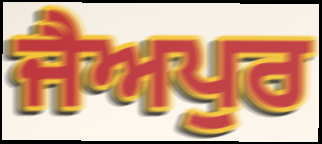
ਜੈਅਪੁਰ